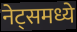
नेट्समध्ये